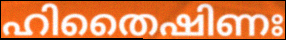
ഹിതൈഷിണഃ